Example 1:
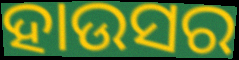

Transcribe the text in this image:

ହାଉସର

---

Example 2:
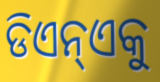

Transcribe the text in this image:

ଡିଏନ୍ଏକୁ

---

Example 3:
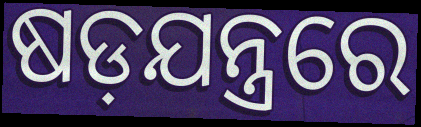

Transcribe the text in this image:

ଷଡ଼ଯନ୍ତ୍ରରେ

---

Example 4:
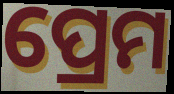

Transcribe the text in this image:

ପ୍ରେମ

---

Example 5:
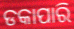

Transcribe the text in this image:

ଡକାପାରି